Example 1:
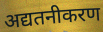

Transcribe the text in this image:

अद्यतनीकरण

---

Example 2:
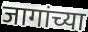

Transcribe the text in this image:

जागांच्या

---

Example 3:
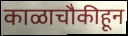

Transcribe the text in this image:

काळाचौकीहून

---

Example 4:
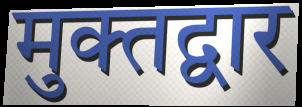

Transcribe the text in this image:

मुक्तद्वार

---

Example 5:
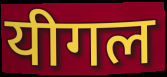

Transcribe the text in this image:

यीगल